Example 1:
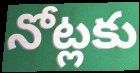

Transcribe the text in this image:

నోట్లకు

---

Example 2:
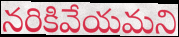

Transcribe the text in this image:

నరికివేయమని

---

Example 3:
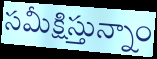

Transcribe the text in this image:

సమీక్షిస్తున్నాం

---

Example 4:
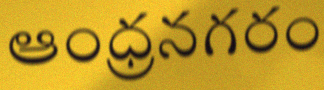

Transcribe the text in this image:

ఆంధ్రనగరం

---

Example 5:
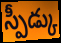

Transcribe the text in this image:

స్పీడ్కు